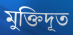
মুক্তিদূত